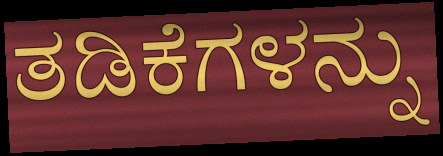
ತಡಿಕೆಗಳನ್ನು